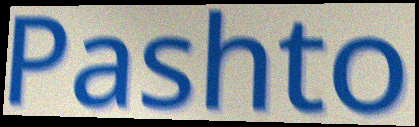
Pashto